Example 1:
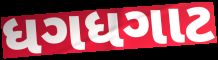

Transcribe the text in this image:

ધગધગાટ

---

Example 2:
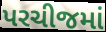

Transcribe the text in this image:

પરચીજમાં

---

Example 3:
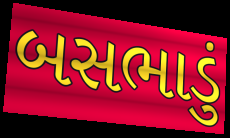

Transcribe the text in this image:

બસભાડું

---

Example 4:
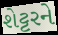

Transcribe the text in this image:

શેટ્ટરને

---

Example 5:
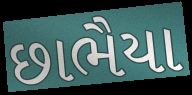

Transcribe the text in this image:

છાભૈયા